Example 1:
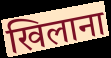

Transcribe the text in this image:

खिलाना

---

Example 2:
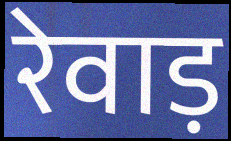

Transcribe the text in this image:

रेवाड़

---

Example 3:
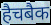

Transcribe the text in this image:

हैचबैक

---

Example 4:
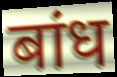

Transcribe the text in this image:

बांध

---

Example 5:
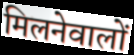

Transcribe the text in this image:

मिलनेवालों